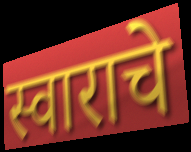
स्वाराचे